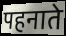
पहनाते